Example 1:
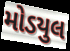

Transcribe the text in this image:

મોડયુલ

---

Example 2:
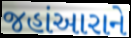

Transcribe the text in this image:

જહાંઆરાને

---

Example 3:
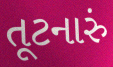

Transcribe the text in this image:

તૂટનારું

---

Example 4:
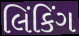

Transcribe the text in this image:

લિંકિંગ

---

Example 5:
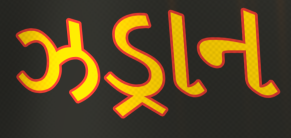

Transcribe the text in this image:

ઝડ્રાન